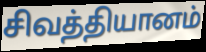
சிவத்தியானம்